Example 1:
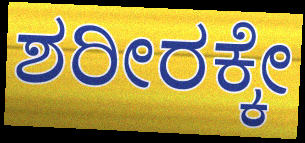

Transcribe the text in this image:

ಶರೀರಕ್ಕೇ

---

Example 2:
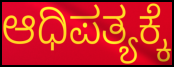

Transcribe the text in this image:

ಆಧಿಪತ್ಯಕ್ಕೆ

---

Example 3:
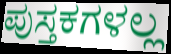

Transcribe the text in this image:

ಪುಸ್ತಕಗಳಲ್ಲ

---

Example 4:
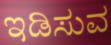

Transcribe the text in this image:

ಇಡಿಸುವ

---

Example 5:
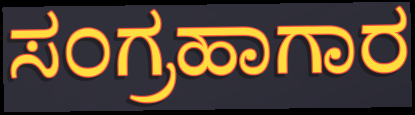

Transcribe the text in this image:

ಸಂಗ್ರಹಾಗಾರ